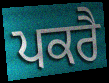
ਪਕਰੈ